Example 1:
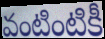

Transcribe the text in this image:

వంటింటికీ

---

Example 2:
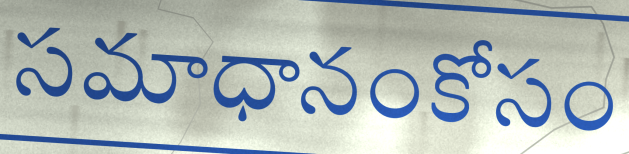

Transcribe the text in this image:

సమాధానంకోసం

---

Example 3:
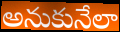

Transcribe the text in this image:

అనుకునేలా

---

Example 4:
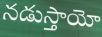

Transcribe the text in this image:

నడుస్తాయో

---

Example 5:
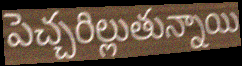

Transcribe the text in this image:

పెచ్చరిల్లుతున్నాయి